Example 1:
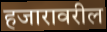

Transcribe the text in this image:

हजारावरील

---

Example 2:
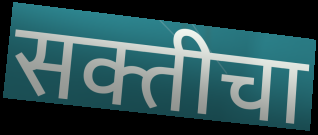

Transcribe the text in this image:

सक्‍तीचा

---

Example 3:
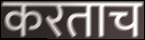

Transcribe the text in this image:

करताच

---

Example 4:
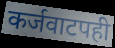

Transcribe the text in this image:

कर्जवाटपही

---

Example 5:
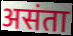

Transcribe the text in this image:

असंता